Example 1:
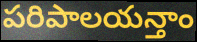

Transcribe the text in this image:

పరిపాలయన్తాం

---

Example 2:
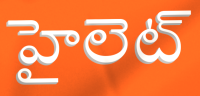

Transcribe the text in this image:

హైలెట్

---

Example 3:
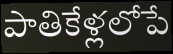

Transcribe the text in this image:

పాతికేళ్లలోపే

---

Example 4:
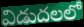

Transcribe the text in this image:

విడుదలలో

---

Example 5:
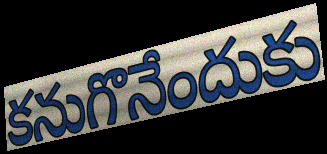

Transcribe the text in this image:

కనుగొనేందుకు